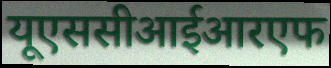
यूएससीआईआरएफ